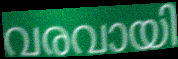
വരവായി